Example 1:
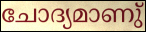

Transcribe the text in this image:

ചോദ്യമാണു്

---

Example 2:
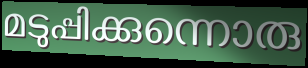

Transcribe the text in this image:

മടുപ്പിക്കുന്നൊരു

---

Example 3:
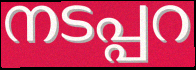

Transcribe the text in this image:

നടപ്പറ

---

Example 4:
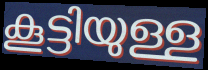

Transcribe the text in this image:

കൂട്ടിയുള്ള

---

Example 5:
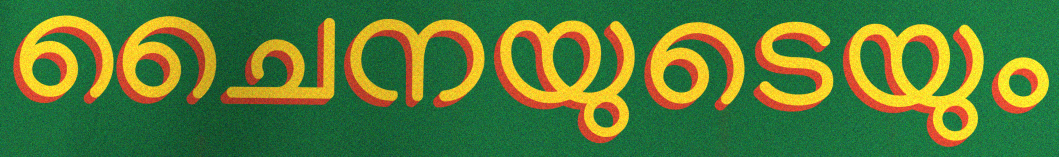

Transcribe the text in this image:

ചൈനയുടെയും